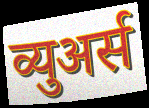
व्युअर्स